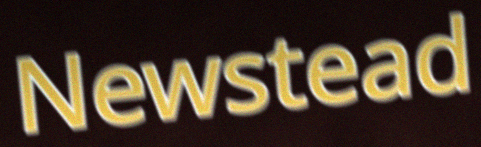
Newstead